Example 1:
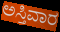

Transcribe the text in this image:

ಅಸ್ತಿವಾರ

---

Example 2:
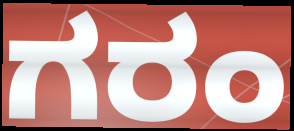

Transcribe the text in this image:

ಗರಂ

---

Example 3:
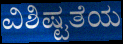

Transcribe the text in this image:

ವಿಶಿಷ್ಟತೆಯ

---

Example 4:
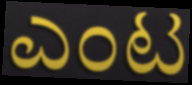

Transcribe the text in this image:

ಎಂಟ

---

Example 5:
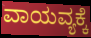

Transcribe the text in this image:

ವಾಯವ್ಯಕ್ಕೆ